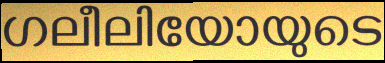
ഗലീലിയോയുടെ